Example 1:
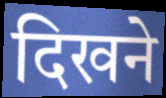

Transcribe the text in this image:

दिखने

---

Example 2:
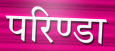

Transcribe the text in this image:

परिण्डा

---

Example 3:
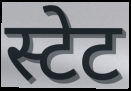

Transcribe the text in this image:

स्टेट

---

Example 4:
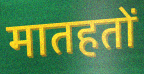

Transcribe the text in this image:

मातहतों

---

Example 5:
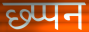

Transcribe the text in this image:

छ्प्पन